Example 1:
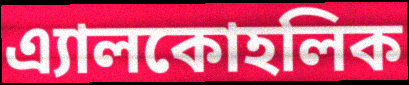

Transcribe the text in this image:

এ্যালকোহলিক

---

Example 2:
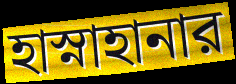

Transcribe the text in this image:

হাস্নাহানার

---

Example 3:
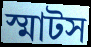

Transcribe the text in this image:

স্মাটস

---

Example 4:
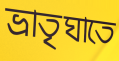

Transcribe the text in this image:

ভ্রাতৃঘাতে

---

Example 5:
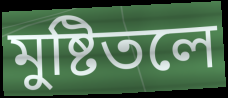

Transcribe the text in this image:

মুষ্টিতলে